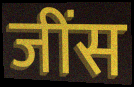
जींस